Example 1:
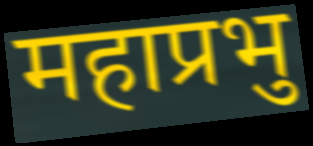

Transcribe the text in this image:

महाप्रभु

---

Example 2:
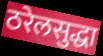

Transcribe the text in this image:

ठरेलसुद्धा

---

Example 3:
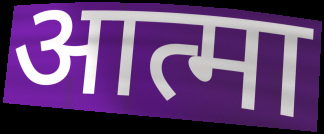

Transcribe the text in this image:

आत्मा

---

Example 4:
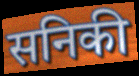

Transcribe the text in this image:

सनिकी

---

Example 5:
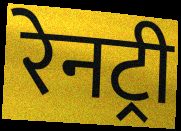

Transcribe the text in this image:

रेनट्री